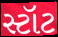
સ્ટૉટ